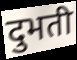
दुभती